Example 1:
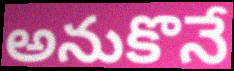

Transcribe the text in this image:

అనుకొనే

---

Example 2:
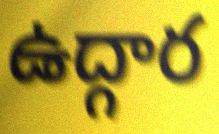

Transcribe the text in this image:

ఉద్గార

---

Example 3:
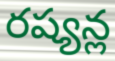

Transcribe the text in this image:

రష్యన్ల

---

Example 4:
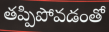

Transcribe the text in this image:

తప్పిపోవడంతో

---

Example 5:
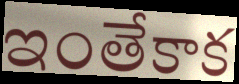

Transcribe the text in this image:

ఇంతేకాక